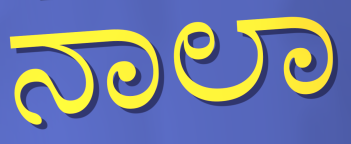
ನಾಲಾ